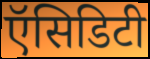
ऍसिडिटी